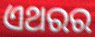
ଏଥରର